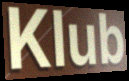
Klub